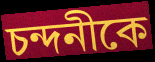
চন্দনীকে